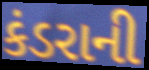
કંડરાની